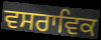
ਵਸਰਾਵਿਕ